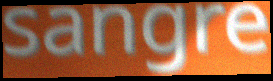
sangre